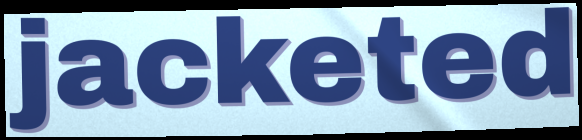
jacketed